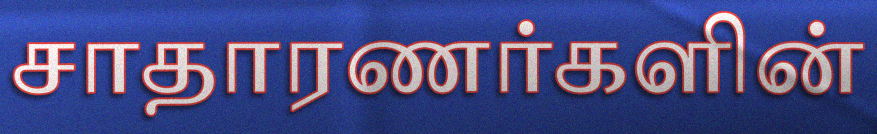
சாதாரணர்களின்